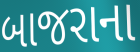
બાજરાના